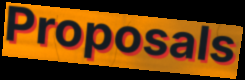
Proposals